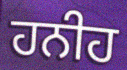
ਹਨੀਹ